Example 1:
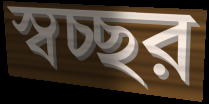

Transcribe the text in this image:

স্বচ্ছর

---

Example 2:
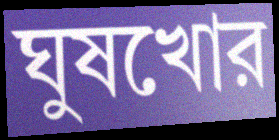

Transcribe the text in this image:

ঘুষখোর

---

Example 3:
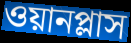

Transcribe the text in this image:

ওয়ানপ্লাস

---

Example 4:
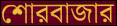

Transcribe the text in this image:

শোরবাজার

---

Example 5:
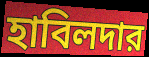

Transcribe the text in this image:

হাবিলদার